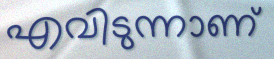
എവിടുന്നാണ്